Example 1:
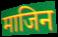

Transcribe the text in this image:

माजिन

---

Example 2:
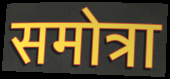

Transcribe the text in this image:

समोत्रा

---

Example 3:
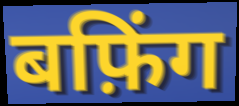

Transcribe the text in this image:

बफ़िंग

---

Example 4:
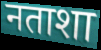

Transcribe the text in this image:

नताशा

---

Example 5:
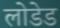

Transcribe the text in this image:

लोडेड